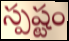
స్పష్టం